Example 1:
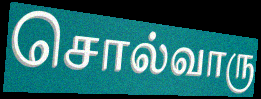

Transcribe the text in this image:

சொல்வாரு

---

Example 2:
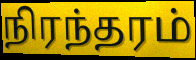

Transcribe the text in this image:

நிரந்தரம்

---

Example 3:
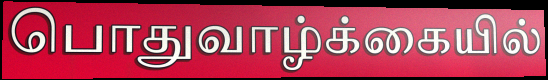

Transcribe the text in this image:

பொதுவாழ்க்கையில்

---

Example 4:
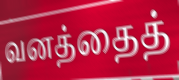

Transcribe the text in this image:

வனத்தைத்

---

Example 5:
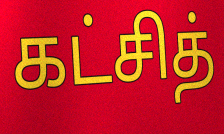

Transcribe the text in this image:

கட்சித்